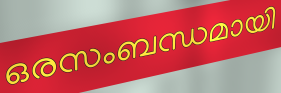
ഒരസംബന്ധമായി